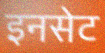
इनसेट